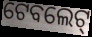
ଟେବଲେଟ୍